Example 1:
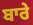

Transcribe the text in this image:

ਬਾਰੇ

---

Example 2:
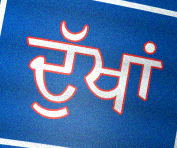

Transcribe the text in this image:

ਦੁੱਖਾਂ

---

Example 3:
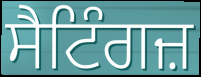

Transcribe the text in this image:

ਸੈਟਿੰਗਜ਼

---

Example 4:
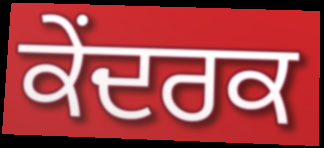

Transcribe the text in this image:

ਕੇਂਦਰਕ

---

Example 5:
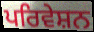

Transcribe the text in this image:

ਪਰਿਵੇਸ਼ਨ